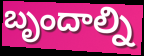
బృందాల్ని